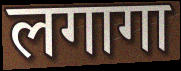
लगागा